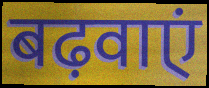
बढ़वाएं